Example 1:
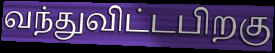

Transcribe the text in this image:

வந்துவிட்டபிறகு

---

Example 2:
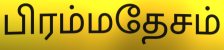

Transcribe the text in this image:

பிரம்மதேசம்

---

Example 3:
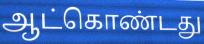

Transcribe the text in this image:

ஆட்கொண்டது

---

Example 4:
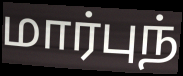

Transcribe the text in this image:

மார்புந்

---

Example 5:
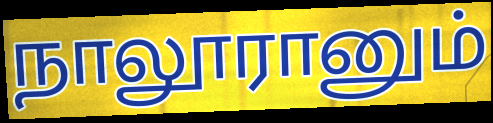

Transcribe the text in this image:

நாலூரானும்